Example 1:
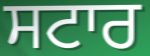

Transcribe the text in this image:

ਸਟਾਰ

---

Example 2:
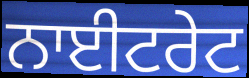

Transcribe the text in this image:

ਨਾਈਟਰੇਟ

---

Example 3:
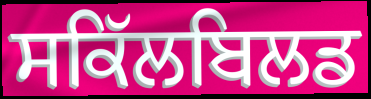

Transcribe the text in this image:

ਸਕਿੱਲਬਿਲਡ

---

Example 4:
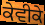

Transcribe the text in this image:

ਕੇਵੀਕੇ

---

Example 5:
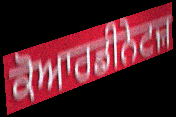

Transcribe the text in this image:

ਕੋਆਰਡੀਨੇਟਜ਼